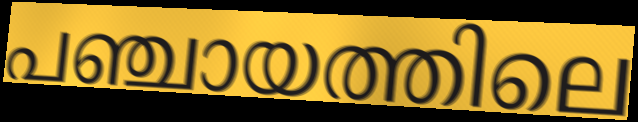
പഞ്ചായത്തിലെ